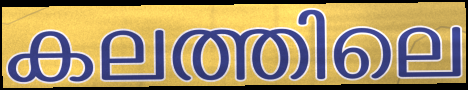
കലത്തിലെ